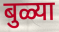
बुळ्या